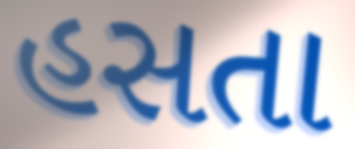
હસતા